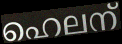
ഹെലന്